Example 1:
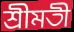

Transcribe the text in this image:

শ্ৰীমতী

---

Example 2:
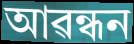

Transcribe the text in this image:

আৱন্ধন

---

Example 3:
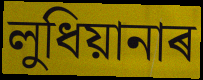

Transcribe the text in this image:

লুধিয়ানাৰ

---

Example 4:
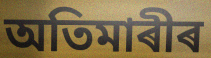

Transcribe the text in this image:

অতিমাৰীৰ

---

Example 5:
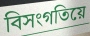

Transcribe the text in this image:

বিসংগতিয়ে